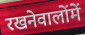
रखनेवालोंमें